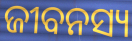
ଜୀବନସ୍ୟ